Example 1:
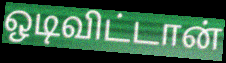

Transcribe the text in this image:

ஒடிவிட்டான்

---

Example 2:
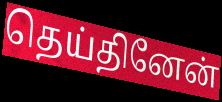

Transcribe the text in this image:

தெய்தினேன்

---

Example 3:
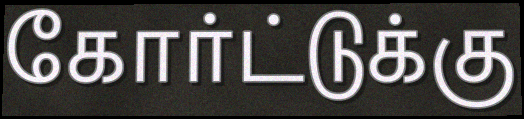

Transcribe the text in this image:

கோர்ட்டுக்கு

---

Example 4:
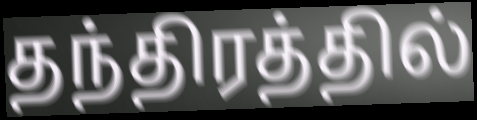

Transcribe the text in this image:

தந்திரத்தில்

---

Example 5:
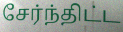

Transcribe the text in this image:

சேர்ந்திட்ட